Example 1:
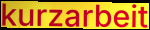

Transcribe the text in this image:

kurzarbeit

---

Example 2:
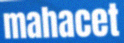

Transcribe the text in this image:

mahacet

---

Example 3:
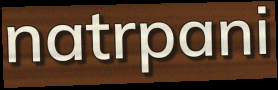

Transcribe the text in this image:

natrpani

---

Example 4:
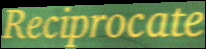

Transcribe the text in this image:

Reciprocate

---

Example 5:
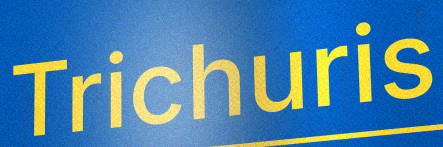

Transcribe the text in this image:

Trichuris